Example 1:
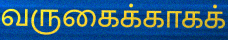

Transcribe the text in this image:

வருகைக்காகக்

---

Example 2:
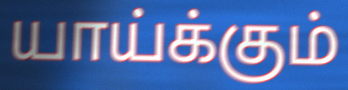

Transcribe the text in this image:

யாய்க்கும்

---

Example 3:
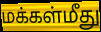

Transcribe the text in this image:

மக்கள்மீது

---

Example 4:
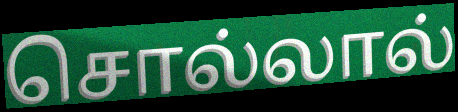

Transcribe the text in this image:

சொல்லால்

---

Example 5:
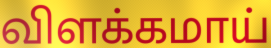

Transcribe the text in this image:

விளக்கமாய்